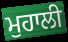
ਮੁਹਾਲੀ